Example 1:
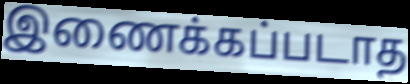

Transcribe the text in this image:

இணைக்கப்படாத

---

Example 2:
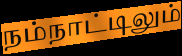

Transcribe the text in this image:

நம்நாட்டிலும்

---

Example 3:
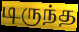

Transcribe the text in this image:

டிருந்த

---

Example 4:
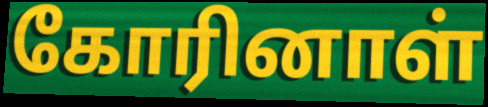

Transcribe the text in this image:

கோரினாள்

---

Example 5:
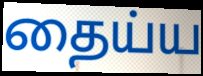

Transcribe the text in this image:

தைய்ய